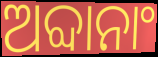
ଅବ୍ଦାନାଂ